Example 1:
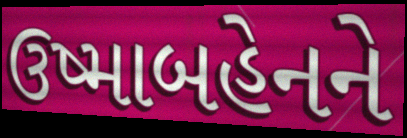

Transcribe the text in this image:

ઉષ્માબહેનને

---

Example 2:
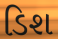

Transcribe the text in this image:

ડિશ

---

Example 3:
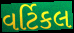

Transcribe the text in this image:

વર્ટિકલ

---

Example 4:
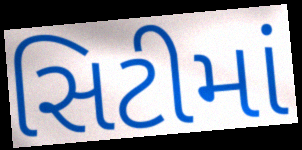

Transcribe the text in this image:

સિટીમાં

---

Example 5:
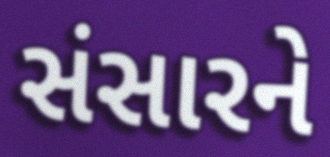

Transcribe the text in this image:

સંસારને